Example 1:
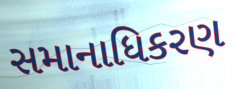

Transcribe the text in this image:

સમાનાધિકરણ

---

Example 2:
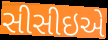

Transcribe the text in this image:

સીસીઇએ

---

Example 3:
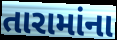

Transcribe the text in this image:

તારામાંના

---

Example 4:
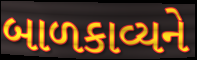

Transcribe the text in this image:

બાળકાવ્યને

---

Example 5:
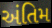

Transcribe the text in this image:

અંતિમ